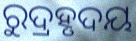
ରୁଦ୍ରହୃଦୟ